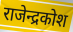
राजेन्द्रकोश